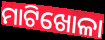
ମାଟିଖୋଳା